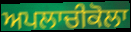
ਅਪਲਾਚੀਕੋਲਾ